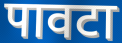
पावटा